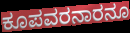
ಕೂಪವರನಾರನೂ